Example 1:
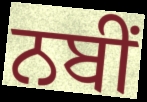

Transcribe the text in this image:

ਨਬੀਂ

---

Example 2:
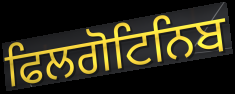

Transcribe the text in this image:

ਫਿਲਗੋਟਿਨਿਬ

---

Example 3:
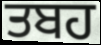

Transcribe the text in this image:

ਤਬਹ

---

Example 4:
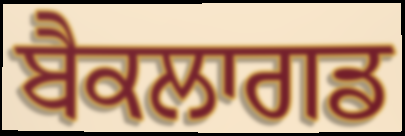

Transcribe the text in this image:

ਬੈਕਲਾਗਡ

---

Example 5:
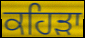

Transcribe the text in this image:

ਕਹਿੜਾ